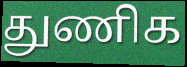
துணிக